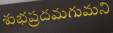
శుభప్రదమగుమని